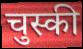
चुस्की